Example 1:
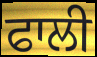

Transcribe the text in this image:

ਫਾਲੀ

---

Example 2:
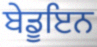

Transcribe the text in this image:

ਬੇਡੂਇਨ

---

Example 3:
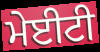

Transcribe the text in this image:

ਮੇਈਟੀ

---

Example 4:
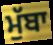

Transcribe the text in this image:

ਮੁੱਬਾ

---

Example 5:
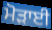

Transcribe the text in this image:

ਮੋੜਾਈ